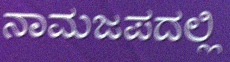
ನಾಮಜಪದಲ್ಲಿ